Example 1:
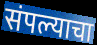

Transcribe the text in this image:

संपल्याचा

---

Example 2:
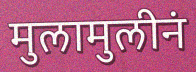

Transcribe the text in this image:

मुलामुलीनं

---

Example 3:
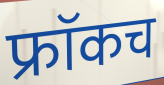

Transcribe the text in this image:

फ्रॉकच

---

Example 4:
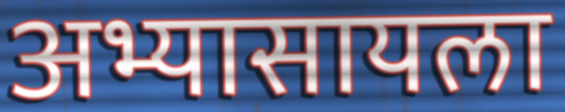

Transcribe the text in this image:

अभ्यासायला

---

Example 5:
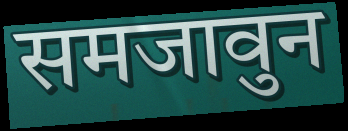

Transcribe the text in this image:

समजावुन